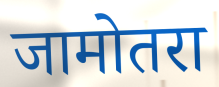
जामोतरा